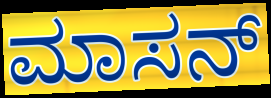
ಮಾಸನ್